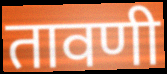
तावणी